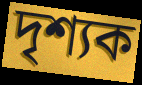
দৃশ্যক